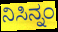
ನಿಸಿನ್ನಂ